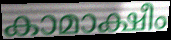
കാമാക്ഷീം